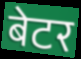
बेटर